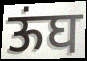
ऊंघ